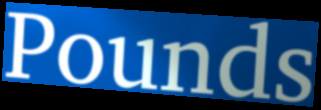
Pounds